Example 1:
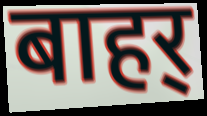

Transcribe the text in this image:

बाहर्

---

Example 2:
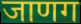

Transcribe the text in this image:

जाणग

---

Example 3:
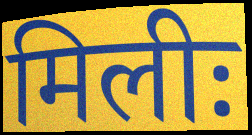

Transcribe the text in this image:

मिलीः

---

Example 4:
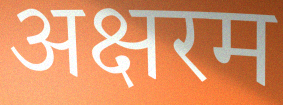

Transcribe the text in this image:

अक्षरम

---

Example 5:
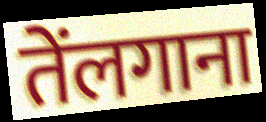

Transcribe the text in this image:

तेंलगाना